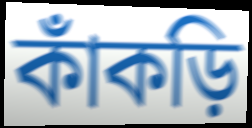
কাঁকড়ি